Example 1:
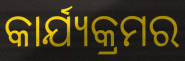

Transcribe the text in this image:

କାର୍ଯ୍ୟକ୍ରମର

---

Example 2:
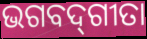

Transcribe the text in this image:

ଭଗବଦ୍‍ଗୀତା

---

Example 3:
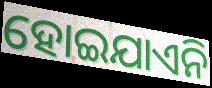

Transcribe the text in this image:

ହୋଇଯାଏନି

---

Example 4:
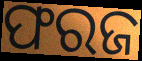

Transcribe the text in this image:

ଫରଜ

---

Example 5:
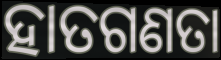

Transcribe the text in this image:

ହାତଗଣତା